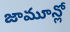
జామూన్లో